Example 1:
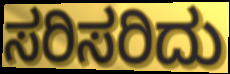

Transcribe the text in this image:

ಸರಿಸರಿದು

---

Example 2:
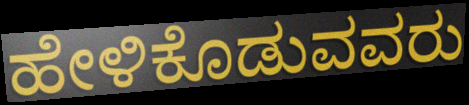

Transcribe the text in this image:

ಹೇಳಿಕೊಡುವವರು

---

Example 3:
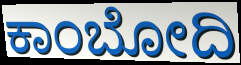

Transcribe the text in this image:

ಕಾಂಬೋದಿ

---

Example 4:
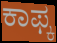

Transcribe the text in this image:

ಕಾಫ್ಕ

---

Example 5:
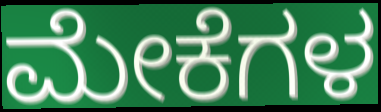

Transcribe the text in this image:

ಮೇಕೆಗಳ